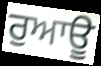
ਰੁਆਊ